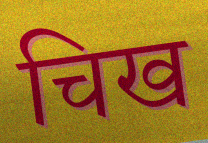
चिख